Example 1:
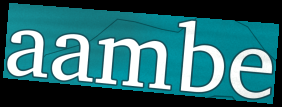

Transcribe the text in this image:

aambe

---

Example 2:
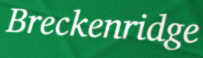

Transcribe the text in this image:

Breckenridge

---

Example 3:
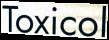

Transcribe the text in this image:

Toxicol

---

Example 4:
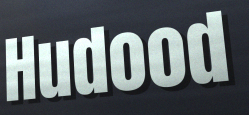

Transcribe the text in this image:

Hudood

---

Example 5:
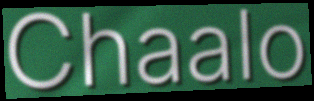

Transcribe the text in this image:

Chaalo